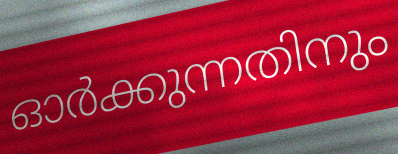
ഓർക്കുന്നതിനും